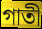
গাতী